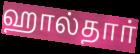
ஹால்தார்